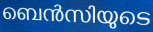
ബെൻസിയുടെ